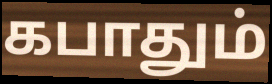
கபாதும்